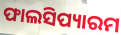
ଫାଲସିପ୍ୟାରମ